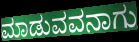
ಮಾಡುವವನಾಗು